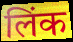
लिंक